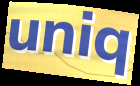
uniq